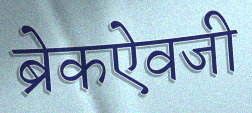
ब्रेकऐवजी